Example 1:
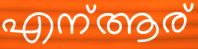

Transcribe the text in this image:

എന്ആര്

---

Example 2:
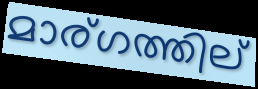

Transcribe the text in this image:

മാര്ഗത്തില്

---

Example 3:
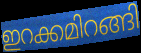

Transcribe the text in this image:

ഇറക്കമിറങ്ങി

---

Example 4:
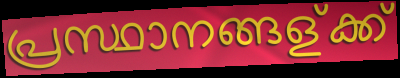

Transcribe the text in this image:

പ്രസ്ഥാനങ്ങള്ക്ക്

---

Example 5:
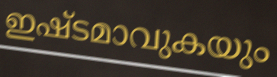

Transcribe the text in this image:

ഇഷ്ടമാവുകയും